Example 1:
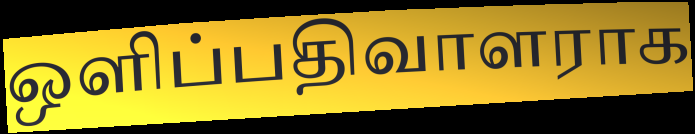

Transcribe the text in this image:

ஒளிப்பதிவாளராக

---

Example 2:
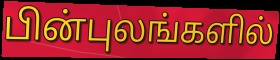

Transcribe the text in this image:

பின்புலங்களில்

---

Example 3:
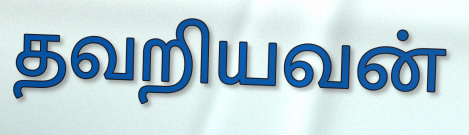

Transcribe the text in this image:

தவறியவன்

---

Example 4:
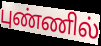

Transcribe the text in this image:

புண்ணில்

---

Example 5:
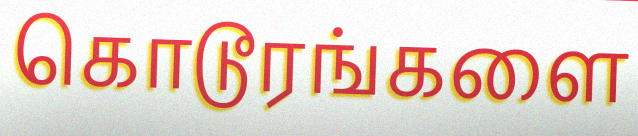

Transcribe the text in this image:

கொடூரங்களை